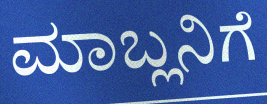
ಮಾಬ್ಲನಿಗೆ